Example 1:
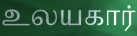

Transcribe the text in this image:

உலயகார்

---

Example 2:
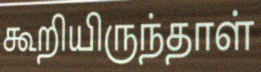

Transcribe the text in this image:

கூறியிருந்தாள்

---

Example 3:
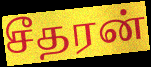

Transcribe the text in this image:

சீதரன்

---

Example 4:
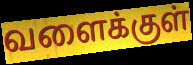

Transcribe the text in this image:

வளைக்குள்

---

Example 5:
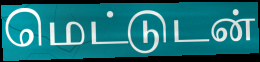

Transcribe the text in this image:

மெட்டுடன்